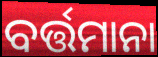
ବର୍ତ୍ତମାନା